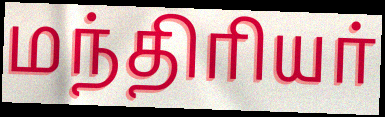
மந்திரியர்